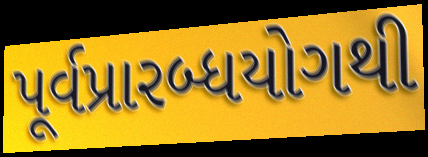
પૂર્વપ્રારબ્ધયોગથી